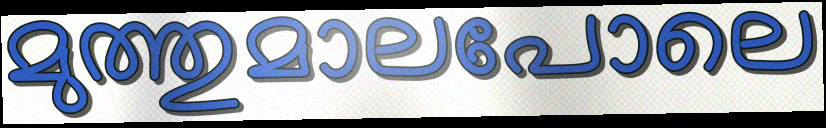
മുത്തുമാലപോലെ